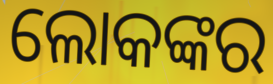
ଲୋକଙ୍କର